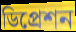
ডিপ্রেশন